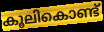
കൂലികൊണ്ട്